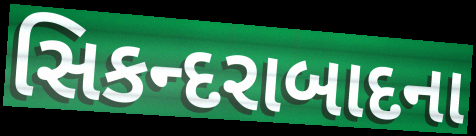
સિકન્દરાબાદના